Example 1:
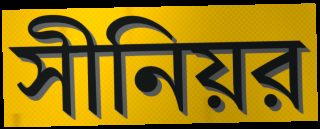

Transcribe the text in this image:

সীনিয়র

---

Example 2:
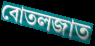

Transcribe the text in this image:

বোতলজাত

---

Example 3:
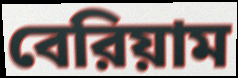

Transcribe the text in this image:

বেরিয়াম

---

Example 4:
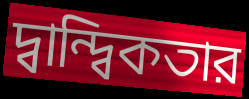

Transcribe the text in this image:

দ্বান্দ্বিকতার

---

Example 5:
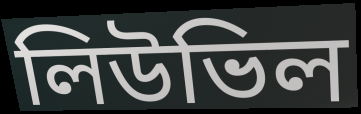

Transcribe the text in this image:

লিউভিল